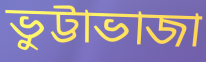
ভুট্টাভাজা